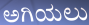
ಅಗಿಯಲು